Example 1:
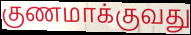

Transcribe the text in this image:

குணமாக்குவது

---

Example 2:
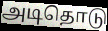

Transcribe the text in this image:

அடிதொடு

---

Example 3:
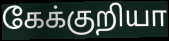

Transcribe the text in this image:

கேக்குறியா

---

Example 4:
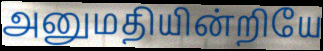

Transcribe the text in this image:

அனுமதியின்றியே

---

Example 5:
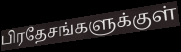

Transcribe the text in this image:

பிரதேசங்களுக்குள்